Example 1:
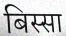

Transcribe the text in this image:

बिस्सा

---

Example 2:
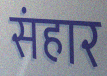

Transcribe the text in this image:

संहार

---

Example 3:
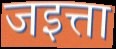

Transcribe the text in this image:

जइत्ता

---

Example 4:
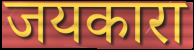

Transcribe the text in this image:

जयकारा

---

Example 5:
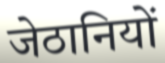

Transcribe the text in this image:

जेठानियों